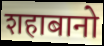
शहाबानो